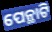
ପେନ୍ଥାଟି